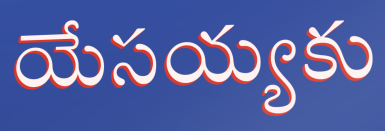
యేసయ్యకు